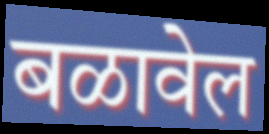
बळावेल